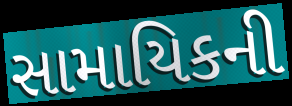
સામાયિકની